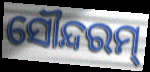
ସୌନ୍ଦରମ୍